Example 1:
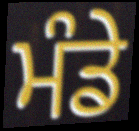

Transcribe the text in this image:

ਮੰਡੇ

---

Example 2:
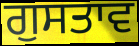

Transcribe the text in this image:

ਗੁਸਤਾਵ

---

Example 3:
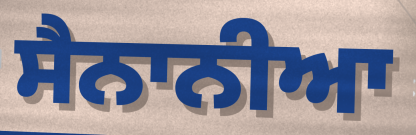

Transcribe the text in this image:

ਸੈਨਾਨੀਆ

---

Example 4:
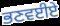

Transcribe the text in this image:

ਭਣਵਈਏ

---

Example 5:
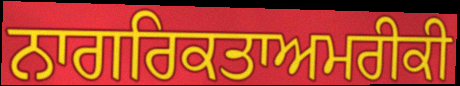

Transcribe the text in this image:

ਨਾਗਰਿਕਤਾਅਮਰੀਕੀ